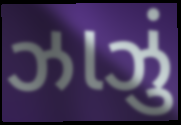
ઝાઝું